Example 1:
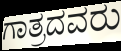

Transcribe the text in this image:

ಗಾತ್ರದವರು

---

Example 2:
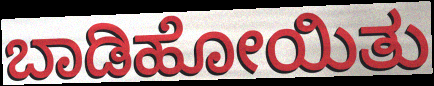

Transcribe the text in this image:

ಬಾಡಿಹೋಯಿತು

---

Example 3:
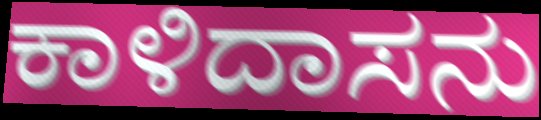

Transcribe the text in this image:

ಕಾಳಿದಾಸನು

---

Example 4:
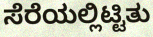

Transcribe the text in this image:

ಸೆರೆಯಲ್ಲಿಟ್ಟಿತು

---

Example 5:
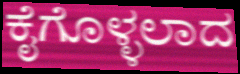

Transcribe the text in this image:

ಕೈಗೊಳ್ಳಲಾದ